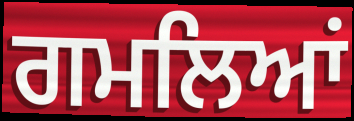
ਗਮਲਿਆਂ